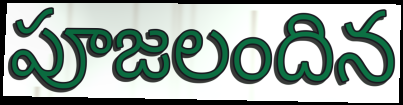
పూజలందిన